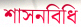
শাসনবিধি